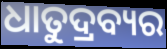
ଧାତୁଦ୍ରବ୍ୟର